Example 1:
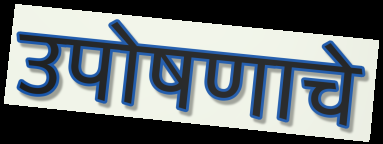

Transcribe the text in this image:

उपोषणाचे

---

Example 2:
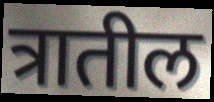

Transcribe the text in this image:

त्रातील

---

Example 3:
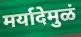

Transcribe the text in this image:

मर्यादेमुळं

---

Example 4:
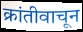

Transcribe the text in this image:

क्रांतीवाचून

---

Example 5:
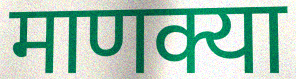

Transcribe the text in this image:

माणक्या